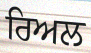
ਰਿਅਲ